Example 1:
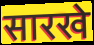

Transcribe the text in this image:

सारखे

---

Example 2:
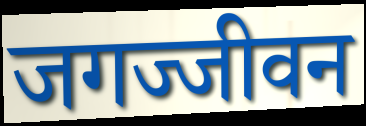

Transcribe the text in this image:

जगज्जीवन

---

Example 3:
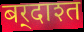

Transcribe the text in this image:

बर्दाश्त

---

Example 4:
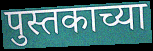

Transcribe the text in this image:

पुस्तकाच्या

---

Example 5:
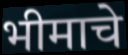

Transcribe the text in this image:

भीमाचे